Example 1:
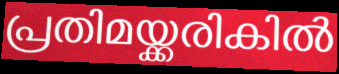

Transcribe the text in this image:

പ്രതിമയ്ക്കരികിൽ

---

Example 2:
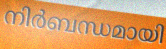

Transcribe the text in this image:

നിർബന്ധമായി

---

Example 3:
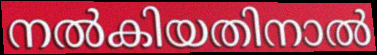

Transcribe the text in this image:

നൽകിയതിനാൽ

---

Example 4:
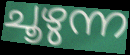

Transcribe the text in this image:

ചൂഴുന്ന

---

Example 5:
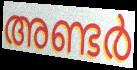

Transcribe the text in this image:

അണ്ടർ